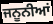
ਜਨੂਨੀਆਂ